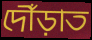
দৌঁড়াত